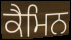
ਕੈਮਿਨ